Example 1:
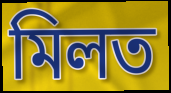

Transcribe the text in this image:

মিলত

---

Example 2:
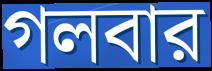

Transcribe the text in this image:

গলবার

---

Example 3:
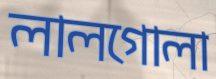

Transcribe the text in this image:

লালগোলা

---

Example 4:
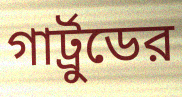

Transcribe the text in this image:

গার্ট্রুডের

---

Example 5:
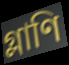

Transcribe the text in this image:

গ্লাণি